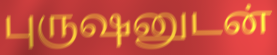
புருஷனுடன்